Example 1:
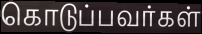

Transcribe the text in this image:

கொடுப்பவர்கள்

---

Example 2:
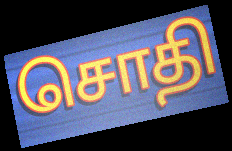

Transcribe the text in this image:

சொதி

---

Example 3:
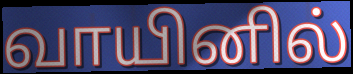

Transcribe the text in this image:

வாயினில்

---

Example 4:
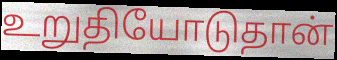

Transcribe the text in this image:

உறுதியோடுதான்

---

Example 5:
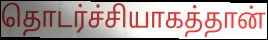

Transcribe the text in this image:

தொடர்ச்சியாகத்தான்